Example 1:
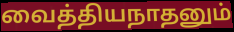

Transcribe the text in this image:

வைத்தியநாதனும்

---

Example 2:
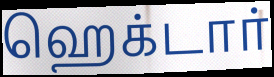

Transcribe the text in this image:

ஹெக்டார்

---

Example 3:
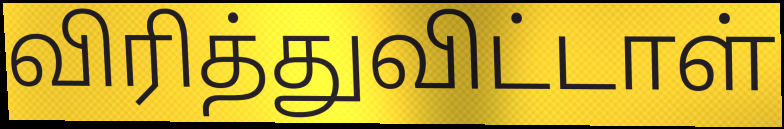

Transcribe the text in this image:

விரித்துவிட்டாள்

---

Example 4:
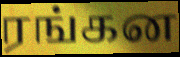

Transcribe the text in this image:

ரங்கன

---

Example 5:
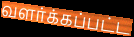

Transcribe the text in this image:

வளர்க்கப்பட்ட